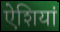
ऐशियां